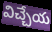
విచ్చేయ